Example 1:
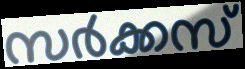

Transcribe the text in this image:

സർക്കസ്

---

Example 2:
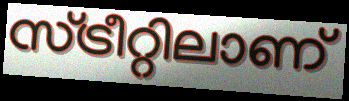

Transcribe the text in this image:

സ്ട്രീറ്റിലാണ്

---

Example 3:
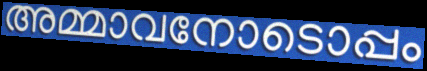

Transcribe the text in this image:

അമ്മാവനോടൊപ്പം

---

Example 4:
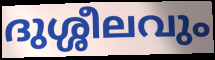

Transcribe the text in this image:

ദുശ്ശീലവും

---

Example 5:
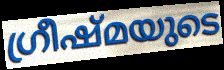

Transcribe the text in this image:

ഗ്രീഷ്മയുടെ